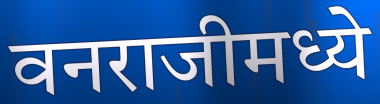
वनराजीमध्ये